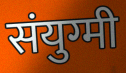
संयुग्मी